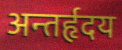
अन्तर्हृदय